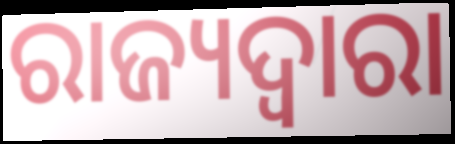
ରାଜ୍ୟଦ୍ୱାରା